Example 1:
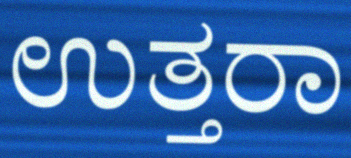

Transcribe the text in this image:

ಉತ್ತರಾ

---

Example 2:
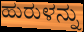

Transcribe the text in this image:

ಹುರುಳನ್ನು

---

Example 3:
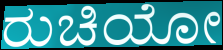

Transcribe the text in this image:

ರುಚಿಯೋ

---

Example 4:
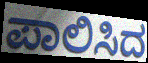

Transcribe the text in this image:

ಪಾಲಿಸಿದ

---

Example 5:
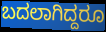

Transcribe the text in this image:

ಬದಲಾಗಿದ್ದರೂ